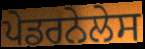
ਪੇਡਰਨੇਲੇਸ